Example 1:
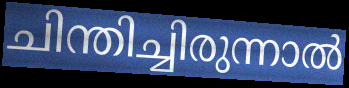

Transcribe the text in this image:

ചിന്തിച്ചിരുന്നാൽ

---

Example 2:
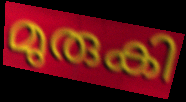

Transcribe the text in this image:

മുരുകി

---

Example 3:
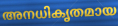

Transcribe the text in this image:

അനധികൃതമായ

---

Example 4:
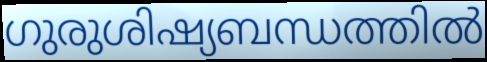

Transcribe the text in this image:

ഗുരുശിഷ്യബന്ധത്തിൽ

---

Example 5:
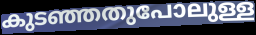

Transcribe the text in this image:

കുടഞ്ഞതുപോലുള്ള